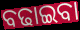
ବଢାଇବା